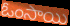
ఓంసాయి